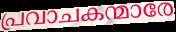
പ്രവാചകന്മാരേ